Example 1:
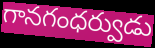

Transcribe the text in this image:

గానగంధర్వుడు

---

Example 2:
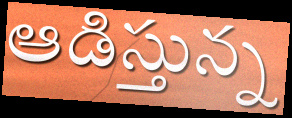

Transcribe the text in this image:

ఆడిస్తున్న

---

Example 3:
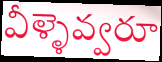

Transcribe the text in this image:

వీళ్ళెవ్వరూ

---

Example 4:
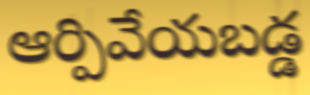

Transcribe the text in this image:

ఆర్పివేయబడ్డ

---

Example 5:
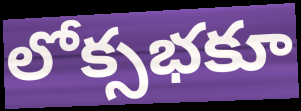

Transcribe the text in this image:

లోక్సభకూ